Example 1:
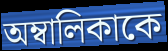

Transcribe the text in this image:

অম্বালিকাকে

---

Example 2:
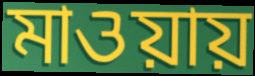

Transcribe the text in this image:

মাওয়ায়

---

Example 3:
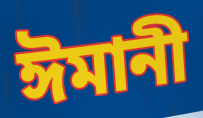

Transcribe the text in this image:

ঈমানী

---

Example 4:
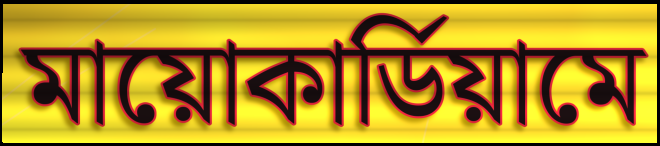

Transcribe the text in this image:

মায়োকার্ডিয়ামে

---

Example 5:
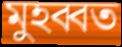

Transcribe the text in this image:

মুহব্বত